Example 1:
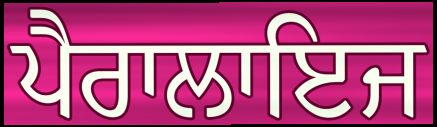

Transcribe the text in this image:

ਪੈਰਾਲਾਇਜ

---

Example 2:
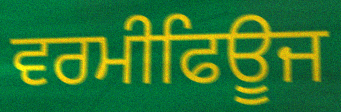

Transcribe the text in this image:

ਵਰਮੀਫਿਊਜ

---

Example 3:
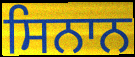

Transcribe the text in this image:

ਸਿਨਾਨ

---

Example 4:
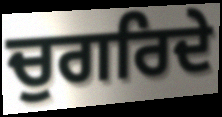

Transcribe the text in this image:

ਚੁਗਰਿਦੇ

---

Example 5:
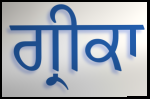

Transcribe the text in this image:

ਗ੍ਰੀਕਾ